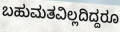
ಬಹುಮತವಿಲ್ಲದಿದ್ದರೂ